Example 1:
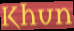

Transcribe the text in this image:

Khun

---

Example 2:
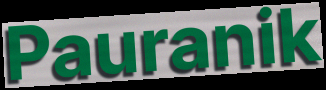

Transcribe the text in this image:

Pauranik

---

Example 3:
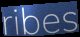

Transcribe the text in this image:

ribes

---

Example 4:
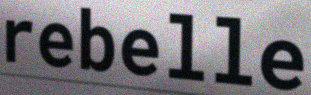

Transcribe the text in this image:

rebelle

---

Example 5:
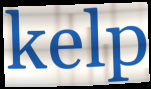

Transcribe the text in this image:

kelp